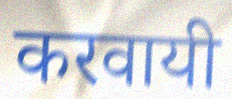
करवायी